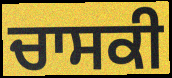
ਚਾਸਕੀ